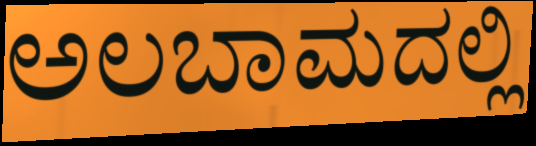
ಅಲಬಾಮದಲ್ಲಿ